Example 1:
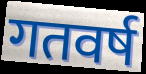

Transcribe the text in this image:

गतवर्ष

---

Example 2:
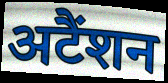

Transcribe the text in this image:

अटैंशन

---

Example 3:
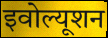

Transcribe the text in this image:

इवोल्यूशन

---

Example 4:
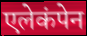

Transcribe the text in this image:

एलेकंपेन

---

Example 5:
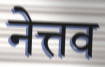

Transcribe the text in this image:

नेत्तव